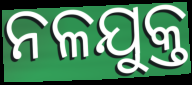
ନଳଯୁକ୍ତ